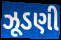
ઝૂડણી